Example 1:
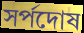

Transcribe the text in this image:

সর্পদোষ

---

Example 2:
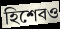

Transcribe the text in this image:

হিশেবও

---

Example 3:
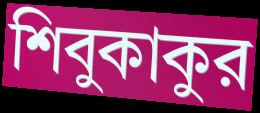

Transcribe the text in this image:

শিবুকাকুর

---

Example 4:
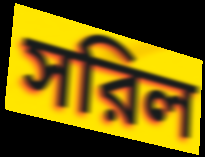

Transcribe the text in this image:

সরিল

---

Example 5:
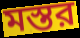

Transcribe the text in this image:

মস্তর